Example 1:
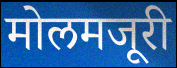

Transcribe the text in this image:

मोलमजूरी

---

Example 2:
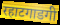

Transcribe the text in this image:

रहाटगाडगी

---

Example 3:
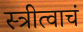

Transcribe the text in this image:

स्त्रीत्वाचं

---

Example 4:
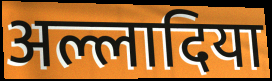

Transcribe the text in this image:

अल्लादिया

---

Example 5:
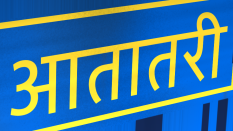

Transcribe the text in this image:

आतातरी